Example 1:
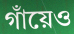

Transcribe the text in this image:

গাঁয়েও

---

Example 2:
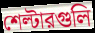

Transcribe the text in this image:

শেল্টারগুলি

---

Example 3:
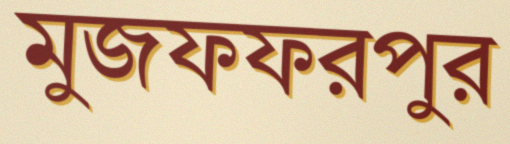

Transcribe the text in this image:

মুজফফরপুর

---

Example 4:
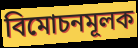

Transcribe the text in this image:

বিমোচনমূলক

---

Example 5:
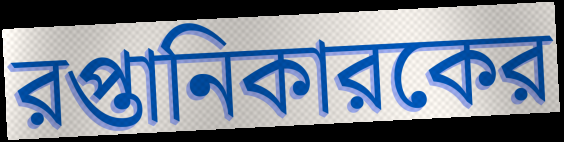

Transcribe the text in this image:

রপ্তানিকারকের